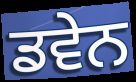
ਡਵੇਨ